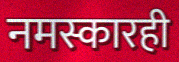
नमस्कारही